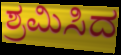
ಶ್ರಮಿಸಿದ